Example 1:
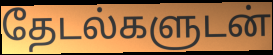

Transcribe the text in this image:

தேடல்களுடன்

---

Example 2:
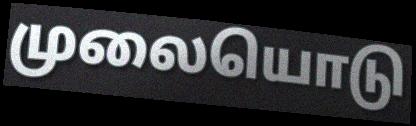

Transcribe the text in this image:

முலையொடு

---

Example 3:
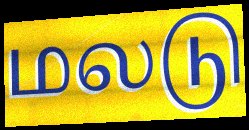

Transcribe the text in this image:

மலடு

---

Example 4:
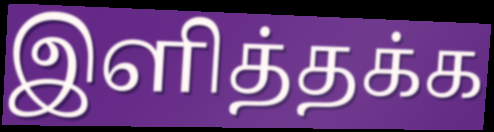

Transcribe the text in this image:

இளித்தக்க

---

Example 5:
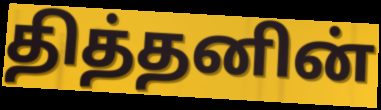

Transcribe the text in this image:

தித்தனின்